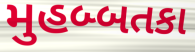
મુહબ્બતકા